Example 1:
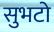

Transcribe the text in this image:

सुभटो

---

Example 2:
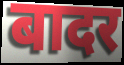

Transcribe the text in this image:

बादर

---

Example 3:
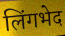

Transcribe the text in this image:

लिंगभेद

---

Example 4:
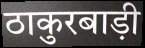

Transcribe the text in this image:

ठाकुरबाड़ी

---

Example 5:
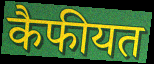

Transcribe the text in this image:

कैफीयत